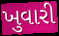
ખુવારી